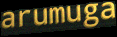
arumuga